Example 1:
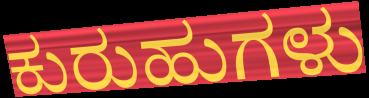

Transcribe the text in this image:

ಕುರುಹುಗಳು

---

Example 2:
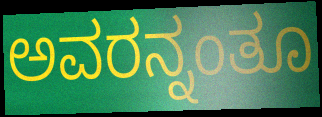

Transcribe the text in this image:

ಅವರನ್ನಂತೂ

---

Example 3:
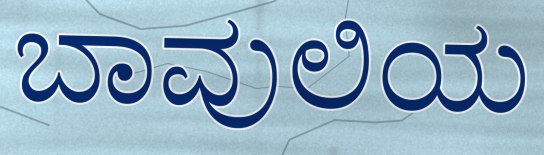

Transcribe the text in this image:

ಬಾವುಲಿಯ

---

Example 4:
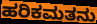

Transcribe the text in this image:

ಹರಿಕಮತನು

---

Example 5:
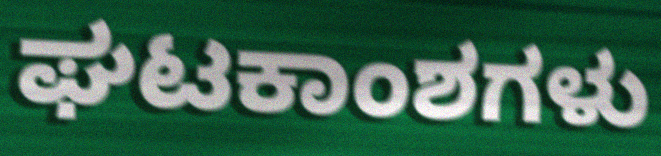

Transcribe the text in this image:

ಘಟಕಾಂಶಗಳು